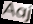
Aaj